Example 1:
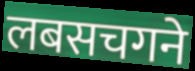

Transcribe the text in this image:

लबसचगने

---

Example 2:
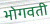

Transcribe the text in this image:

भोगवती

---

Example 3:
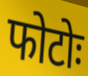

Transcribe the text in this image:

फोटोः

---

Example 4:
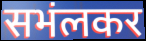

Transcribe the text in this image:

सभंलकर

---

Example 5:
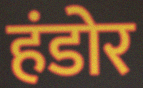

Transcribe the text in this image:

हंडोर